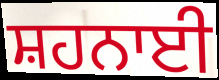
ਸ਼ਹਨਾਈ